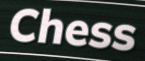
Chess